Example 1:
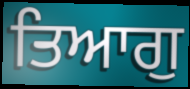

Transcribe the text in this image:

ਤਿਆਗੁ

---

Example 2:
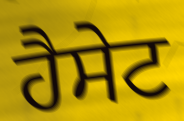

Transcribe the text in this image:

ਹੈਸੇਟ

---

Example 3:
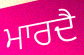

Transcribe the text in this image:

ਮਾਰਦੈ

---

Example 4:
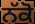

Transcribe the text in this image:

ਨੱਕੋ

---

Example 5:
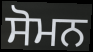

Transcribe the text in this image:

ਸੋਮਨ